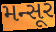
મન્સૂર